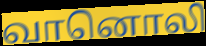
வானொலி